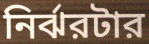
নির্ঝরটার